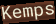
Kemps